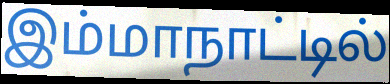
இம்மாநாட்டில்